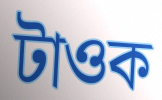
টাওক